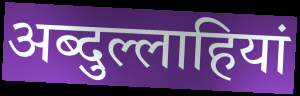
अब्दुल्लाहियां